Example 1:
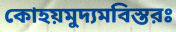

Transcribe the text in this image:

কোহয়মুদ্যমবিস্তরঃ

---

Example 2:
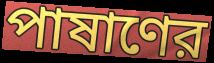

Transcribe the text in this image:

পাষাণের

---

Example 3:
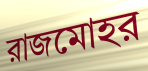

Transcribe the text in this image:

রাজমোহর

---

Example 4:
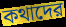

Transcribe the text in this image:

কথাদের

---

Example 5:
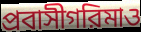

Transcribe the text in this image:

প্রবাসীগরিমাও